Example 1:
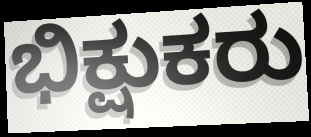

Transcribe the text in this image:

ಭಿಕ್ಷುಕರು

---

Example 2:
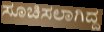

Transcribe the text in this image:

ಸೂಚಿಸಲಾಗಿದ್ದ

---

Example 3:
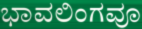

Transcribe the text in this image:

ಭಾವಲಿಂಗವೂ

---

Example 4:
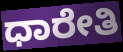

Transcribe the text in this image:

ಧಾರೇತಿ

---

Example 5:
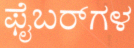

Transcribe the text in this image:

ಫೈಬರ್‌ಗಳ